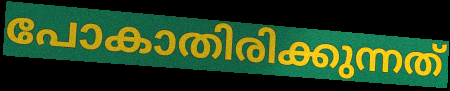
പോകാതിരിക്കുന്നത്